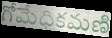
గోమేధికమణి